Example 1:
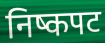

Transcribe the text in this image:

निष्कपट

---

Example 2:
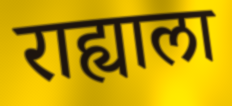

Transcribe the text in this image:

राह्याला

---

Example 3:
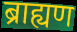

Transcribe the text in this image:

ब्राह्यण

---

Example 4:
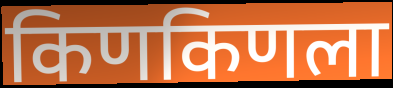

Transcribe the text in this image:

किणकिणला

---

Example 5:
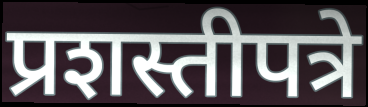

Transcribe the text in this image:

प्रशस्तीपत्रे